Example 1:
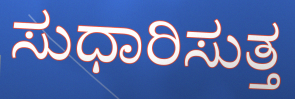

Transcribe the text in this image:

ಸುಧಾರಿಸುತ್ತ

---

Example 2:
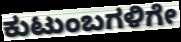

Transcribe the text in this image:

ಕುಟುಂಬಗಳಿಗೇ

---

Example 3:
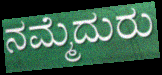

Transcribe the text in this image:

ನಮ್ಮೆದುರು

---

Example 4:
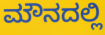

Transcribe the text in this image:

ಮೌನದಲ್ಲಿ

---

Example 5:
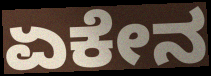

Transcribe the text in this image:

ಏಕೇನ